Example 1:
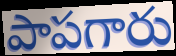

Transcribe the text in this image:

పాపగారు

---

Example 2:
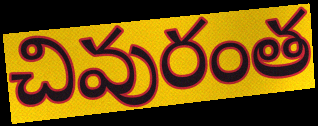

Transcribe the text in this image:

చివురంత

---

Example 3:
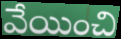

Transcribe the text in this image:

వేయించి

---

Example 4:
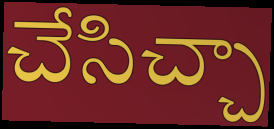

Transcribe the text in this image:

చేసిచ్చా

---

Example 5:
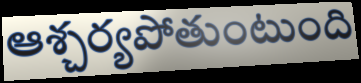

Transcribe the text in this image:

ఆశ్చర్యపోతుంటుంది